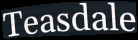
Teasdale